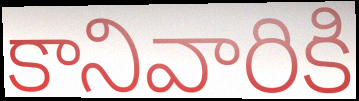
కానివారికి